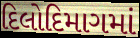
દિલોદિમાગમાં